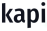
kapi